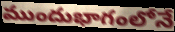
ముందుభాగంలోనే